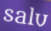
salu